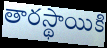
తారస్థాయికి